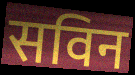
सविन